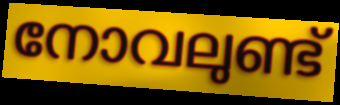
നോവലുണ്ട്